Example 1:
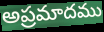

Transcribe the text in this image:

అప్రమాదము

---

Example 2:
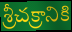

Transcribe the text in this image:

శ్రీచక్రానికి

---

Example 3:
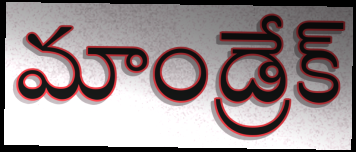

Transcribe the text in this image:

మాండ్రేక్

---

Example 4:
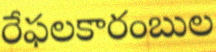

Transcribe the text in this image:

రేఫలకారంబుల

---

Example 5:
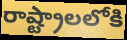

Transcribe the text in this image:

రాష్ట్రాలలోకి